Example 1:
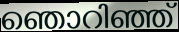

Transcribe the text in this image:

ഞൊറിഞ്ഞ്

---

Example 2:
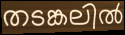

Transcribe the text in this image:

തടങ്കലിൽ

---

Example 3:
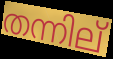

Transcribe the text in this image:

തന്നില്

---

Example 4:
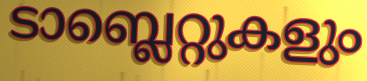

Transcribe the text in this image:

ടാബ്ലെറ്റുകളും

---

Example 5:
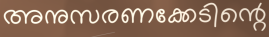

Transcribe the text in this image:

അനുസരണക്കേടിന്റെ